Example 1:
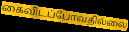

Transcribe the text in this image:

கைவிடப்போவதில்லை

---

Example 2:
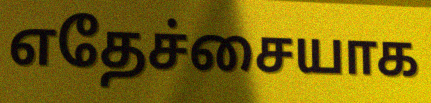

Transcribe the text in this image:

எதேச்சையாக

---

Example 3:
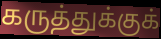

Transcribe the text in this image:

கருத்துக்குக்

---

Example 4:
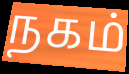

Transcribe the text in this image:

நகம்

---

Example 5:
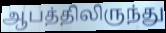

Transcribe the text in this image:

ஆபத்திலிருந்து